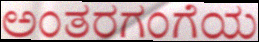
ಅಂತರಗಂಗೆಯ